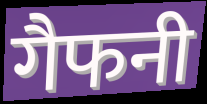
गैफनी